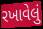
રખાવેલું